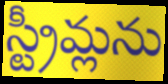
స్ట్రీమ్లను